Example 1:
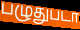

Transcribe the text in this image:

பழுதுபடா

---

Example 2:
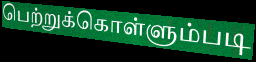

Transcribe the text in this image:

பெற்றுக்கொள்ளும்படி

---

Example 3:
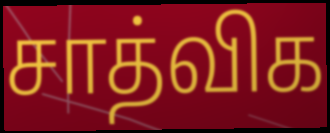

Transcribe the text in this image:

சாத்விக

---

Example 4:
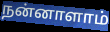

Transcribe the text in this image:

நன்னாளாம்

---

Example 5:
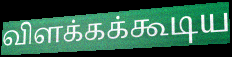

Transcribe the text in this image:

விளக்கக்கூடிய